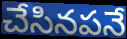
చేసినపనే